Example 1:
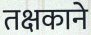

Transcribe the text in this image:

तक्षकाने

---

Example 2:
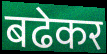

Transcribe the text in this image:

बढेकर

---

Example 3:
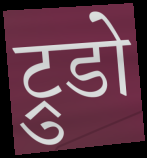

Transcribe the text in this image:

ट्रुडो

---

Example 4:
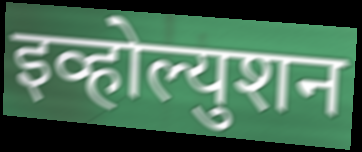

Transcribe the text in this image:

इव्होल्युशन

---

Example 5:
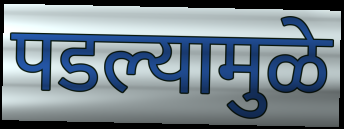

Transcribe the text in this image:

पडल्यामुळे